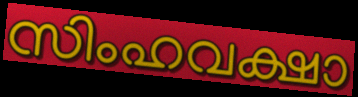
സിംഹവക്ഷാ